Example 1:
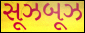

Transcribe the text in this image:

સૂઝબૂઝ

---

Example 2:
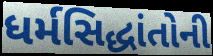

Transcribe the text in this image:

ધર્મસિદ્ધાંતોની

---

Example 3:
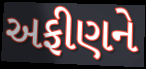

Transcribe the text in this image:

અફીણને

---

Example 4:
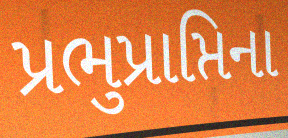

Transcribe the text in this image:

પ્રભુપ્રાપ્તિના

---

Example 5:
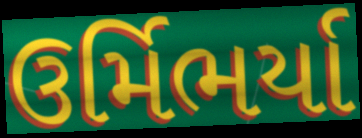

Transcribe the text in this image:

ઉર્મિભર્યા